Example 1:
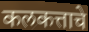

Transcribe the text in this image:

कलकत्ताचे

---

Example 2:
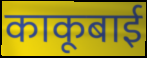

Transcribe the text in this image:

काकूबाई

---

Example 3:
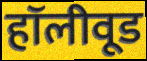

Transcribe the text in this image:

हॉलीवूड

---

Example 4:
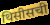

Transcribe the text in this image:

थिसीसची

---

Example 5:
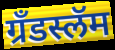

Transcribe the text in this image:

ग्रँडस्लॅम